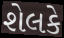
શેલકે